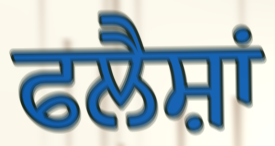
ਫਲੈਸ਼ਾਂ